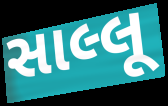
સાલ્લૂ